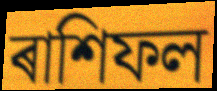
ৰাশিফল